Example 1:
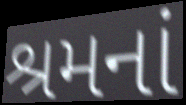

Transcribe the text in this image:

શ્રમનાં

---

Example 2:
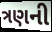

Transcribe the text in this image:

ત્રણની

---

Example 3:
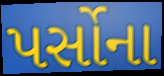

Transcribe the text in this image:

પર્સોના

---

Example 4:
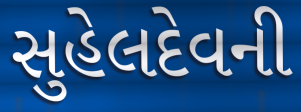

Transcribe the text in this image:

સુહેલદેવની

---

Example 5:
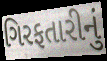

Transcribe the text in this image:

ગિરફતારીનું